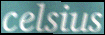
celsius